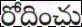
రోదించు